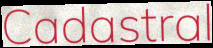
Cadastral